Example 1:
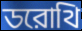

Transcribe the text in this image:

ডরোথি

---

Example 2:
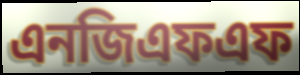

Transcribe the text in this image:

এনজিএফএফ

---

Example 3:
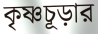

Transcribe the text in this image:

কৃষ্ণচূড়ার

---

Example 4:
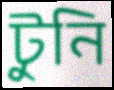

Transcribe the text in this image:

টুনি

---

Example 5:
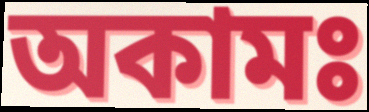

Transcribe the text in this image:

অকামঃ